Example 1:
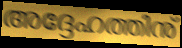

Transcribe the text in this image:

അദ്ദേഹത്തിനു്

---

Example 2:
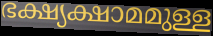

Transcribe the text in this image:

ഭക്ഷ്യക്ഷാമമുള്ള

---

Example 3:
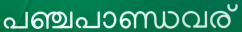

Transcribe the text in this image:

പഞ്ചപാണ്ഡവര്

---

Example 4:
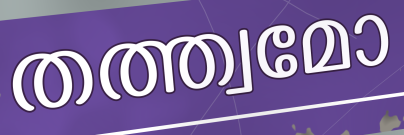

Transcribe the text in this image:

തത്ത്വമോ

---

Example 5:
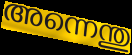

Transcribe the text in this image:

അന്നെന്തു